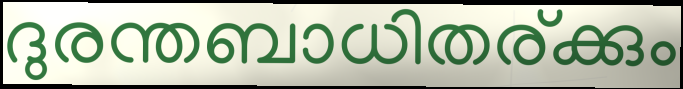
ദുരന്തബാധിതര്ക്കും